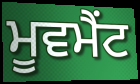
ਮੂਵਮੈਂਟ